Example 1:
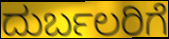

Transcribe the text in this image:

ದುರ್ಬಲರಿಗೆ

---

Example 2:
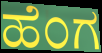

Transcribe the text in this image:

ಹೆಂಗ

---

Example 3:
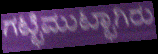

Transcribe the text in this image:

ಗಟ್ಟಿಮುಟ್ಟಾಗಿರು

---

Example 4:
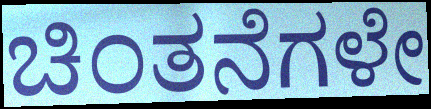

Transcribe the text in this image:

ಚಿಂತನೆಗಳೇ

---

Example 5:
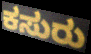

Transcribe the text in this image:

ಕಸುರು